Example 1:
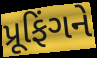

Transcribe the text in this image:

પ્રૂફિંગને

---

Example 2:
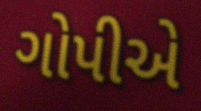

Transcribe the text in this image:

ગોપીએ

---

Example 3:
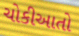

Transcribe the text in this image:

ચોકીઆતો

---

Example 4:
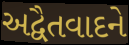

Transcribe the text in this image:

અદ્વૈતવાદને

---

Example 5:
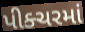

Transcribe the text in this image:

પીક્ચરમાં